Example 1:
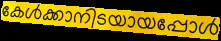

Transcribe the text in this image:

കേൾക്കാനിടയായപ്പോൾ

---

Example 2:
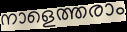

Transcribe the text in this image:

നാളെത്തരാം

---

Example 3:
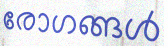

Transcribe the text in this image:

രോഗങ്ങൾ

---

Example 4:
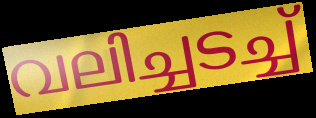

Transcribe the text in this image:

വലിച്ചടച്ച്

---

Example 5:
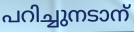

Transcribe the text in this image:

പറിച്ചുനടാന്